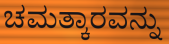
ಚಮತ್ಕಾರವನ್ನು